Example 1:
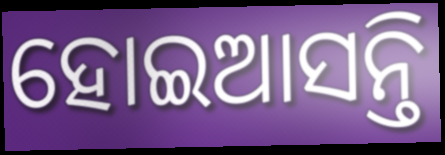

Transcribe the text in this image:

ହୋଇଆସନ୍ତି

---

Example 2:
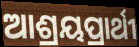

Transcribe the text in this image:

ଆଶ୍ରୟପ୍ରାର୍ଥୀ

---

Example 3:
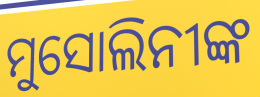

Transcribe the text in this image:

ମୁସୋଲିନୀଙ୍କ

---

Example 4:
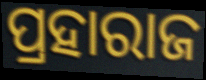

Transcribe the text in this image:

ପ୍ରହାରାଜ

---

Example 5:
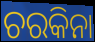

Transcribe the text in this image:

ଚରକିନା